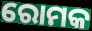
ରୋମକ